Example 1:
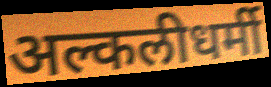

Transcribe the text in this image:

अल्कलीधर्मी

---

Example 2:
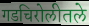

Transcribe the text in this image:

गडचिरोलीतले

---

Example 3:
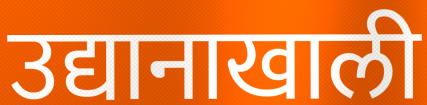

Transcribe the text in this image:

उद्यानाखाली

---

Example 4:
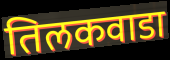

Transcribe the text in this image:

तिलकवाडा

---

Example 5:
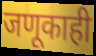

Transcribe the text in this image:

जणूकाही